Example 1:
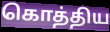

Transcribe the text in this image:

கொத்திய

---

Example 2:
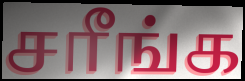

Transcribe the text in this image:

சரீங்க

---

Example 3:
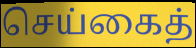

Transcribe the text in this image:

செய்கைத்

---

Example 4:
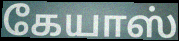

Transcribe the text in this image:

கேயாஸ்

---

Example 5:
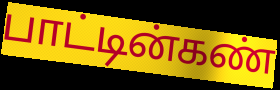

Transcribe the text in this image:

பாட்டின்கண்